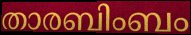
താരബിംബം